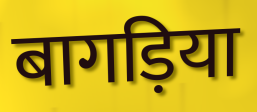
बागड़िया